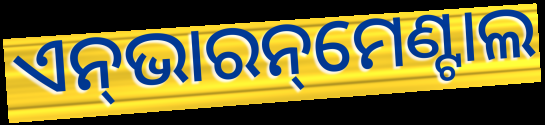
ଏନ୍‌ଭାରନ୍‌ମେଣ୍ଟାଲ